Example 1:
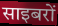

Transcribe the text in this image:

साइबरों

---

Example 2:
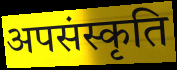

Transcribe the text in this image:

अपसंस्कृति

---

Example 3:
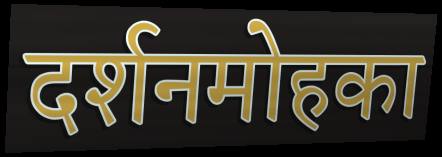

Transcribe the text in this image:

दर्शनमोहका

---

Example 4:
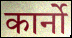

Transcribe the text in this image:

कार्नो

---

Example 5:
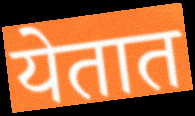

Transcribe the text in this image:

येतात